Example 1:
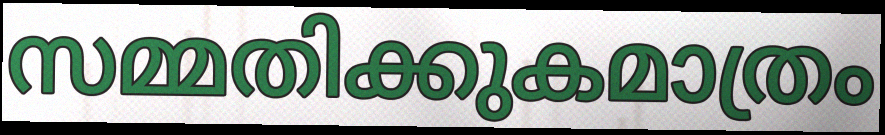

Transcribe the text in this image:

സമ്മതിക്കുകമാത്രം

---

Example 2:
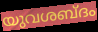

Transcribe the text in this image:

യുവശബ്ദം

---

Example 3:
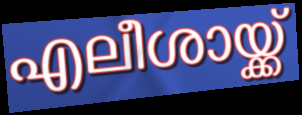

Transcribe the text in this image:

എലീശായ്ക്ക്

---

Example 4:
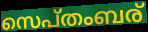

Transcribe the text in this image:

സെപ്തംബര്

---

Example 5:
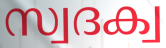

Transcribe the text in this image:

സ്വദക്വ